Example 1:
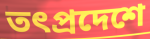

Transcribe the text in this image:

তৎপ্রদেশে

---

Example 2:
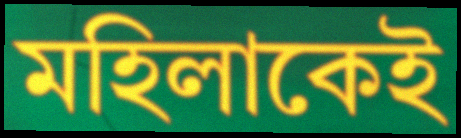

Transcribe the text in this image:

মহিলাকেই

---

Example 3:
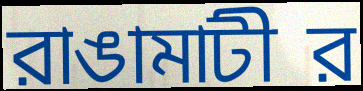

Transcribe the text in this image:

রাঙামাটীর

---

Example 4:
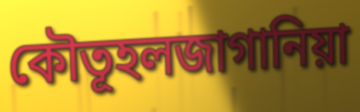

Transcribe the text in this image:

কৌতূহলজাগানিয়া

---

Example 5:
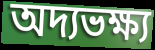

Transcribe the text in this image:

অদ্যভক্ষ্য